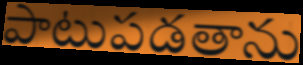
పాటుపడతాను